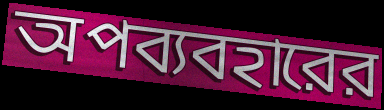
অপব্যবহারের